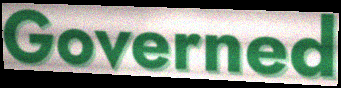
Governed